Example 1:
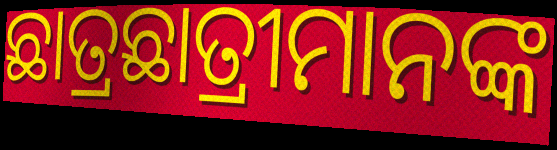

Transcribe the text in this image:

ଛାତ୍ରଛାତ୍ରୀମାନଙ୍କ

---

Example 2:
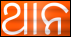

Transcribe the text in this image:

ଥାନ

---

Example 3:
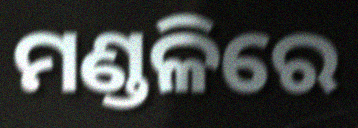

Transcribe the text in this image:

ମଣ୍ଡଳିରେ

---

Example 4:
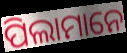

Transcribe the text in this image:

ପିଲାମାନେ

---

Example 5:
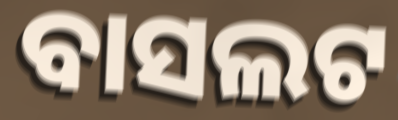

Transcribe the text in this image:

ବାସଲଟ